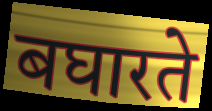
बघारते